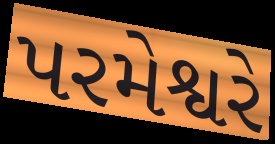
પરમેશ્વરે